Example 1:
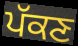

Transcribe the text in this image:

ਪੱਕਣ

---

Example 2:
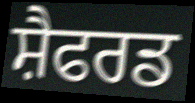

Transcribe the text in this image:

ਸ਼ੈਫਰਡ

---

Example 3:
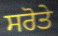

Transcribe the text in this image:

ਸਰੋਤੇ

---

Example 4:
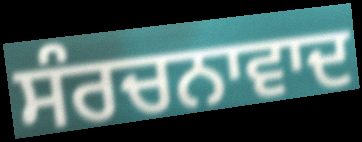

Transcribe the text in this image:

ਸੰਰਚਨਾਵਾਦ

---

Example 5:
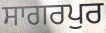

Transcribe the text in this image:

ਸਾਗਰਪੁਰ